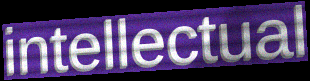
intellectual